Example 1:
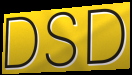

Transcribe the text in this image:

DSD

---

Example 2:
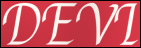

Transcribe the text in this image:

DEVI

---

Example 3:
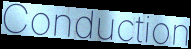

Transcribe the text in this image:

Conduction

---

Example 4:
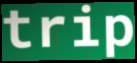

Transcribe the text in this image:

trip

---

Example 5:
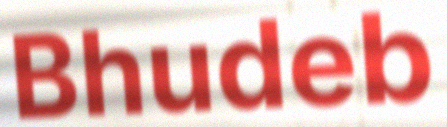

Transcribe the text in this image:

Bhudeb